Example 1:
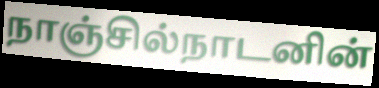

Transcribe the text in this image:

நாஞ்சில்நாடனின்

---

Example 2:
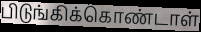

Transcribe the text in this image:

பிடுங்கிக்கொண்டாள்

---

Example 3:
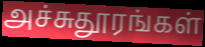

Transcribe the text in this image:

அச்சுதூரங்கள்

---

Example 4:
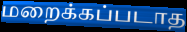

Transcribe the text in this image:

மறைக்கப்படாத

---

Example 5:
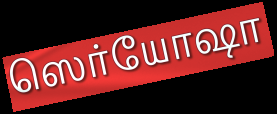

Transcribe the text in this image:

ஸெர்யோஷா